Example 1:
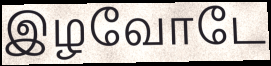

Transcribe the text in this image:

இழவோடே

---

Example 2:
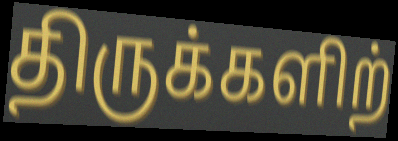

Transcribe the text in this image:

திருக்களிற்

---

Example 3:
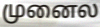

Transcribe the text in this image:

முனைல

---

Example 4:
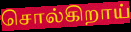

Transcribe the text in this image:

சொல்கிறாய்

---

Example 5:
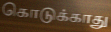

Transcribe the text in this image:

கொடுக்காது